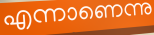
എന്നാണെന്നു